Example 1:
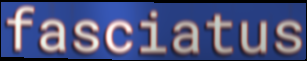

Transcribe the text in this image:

fasciatus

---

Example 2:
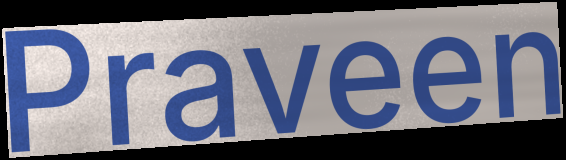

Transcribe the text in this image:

Praveen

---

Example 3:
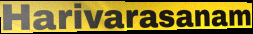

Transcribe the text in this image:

Harivarasanam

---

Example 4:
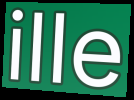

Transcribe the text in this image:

ille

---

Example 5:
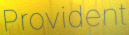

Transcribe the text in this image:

Provident